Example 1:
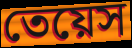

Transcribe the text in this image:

তেয়েস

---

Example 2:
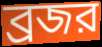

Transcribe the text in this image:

ব্রজর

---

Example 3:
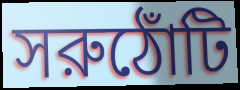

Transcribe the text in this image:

সরুঠোঁটি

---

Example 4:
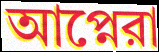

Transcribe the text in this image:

আপ্নেরা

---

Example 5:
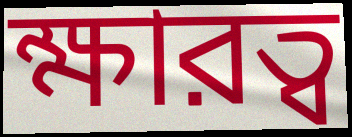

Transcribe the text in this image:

ক্ষারত্ব